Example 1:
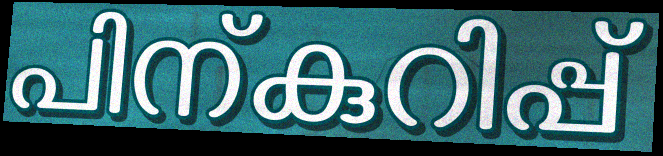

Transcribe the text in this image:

പിന്കുറിപ്പ്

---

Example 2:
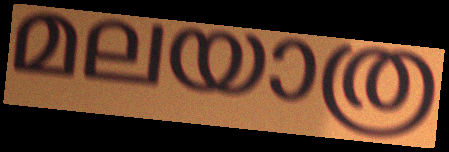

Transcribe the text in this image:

മലയാത്ര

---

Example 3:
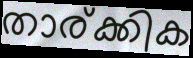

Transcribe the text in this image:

താര്ക്കിക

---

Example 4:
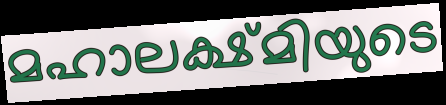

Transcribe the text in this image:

മഹാലക്ഷ്മിയുടെ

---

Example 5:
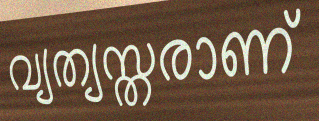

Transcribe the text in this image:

വ്യത്യസ്തരാണ്